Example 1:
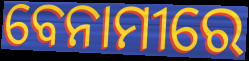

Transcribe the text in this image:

ବେନାମୀରେ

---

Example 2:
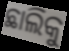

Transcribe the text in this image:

ଛାଲିକୁ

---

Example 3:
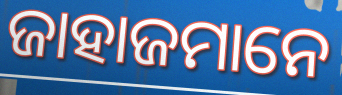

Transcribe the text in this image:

ଜାହାଜମାନେ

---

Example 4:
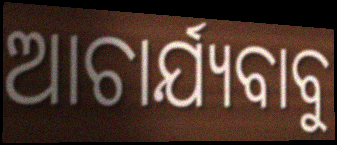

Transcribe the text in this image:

ଆଚାର୍ଯ୍ୟବାବୁ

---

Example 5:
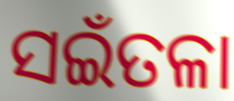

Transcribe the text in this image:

ସଇଁତଳା